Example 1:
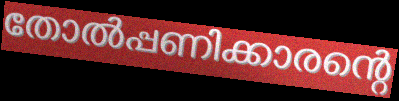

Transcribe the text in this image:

തോൽപ്പണിക്കാരന്റെ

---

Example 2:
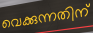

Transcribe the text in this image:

വെക്കുന്നതിന്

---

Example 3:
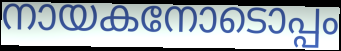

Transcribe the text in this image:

നായകനോടൊപ്പം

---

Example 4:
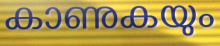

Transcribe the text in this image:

കാണുകയും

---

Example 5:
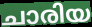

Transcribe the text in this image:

ചാരിയ